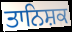
ਤਾਨਿਸ਼ਕ